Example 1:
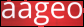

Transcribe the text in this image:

aageo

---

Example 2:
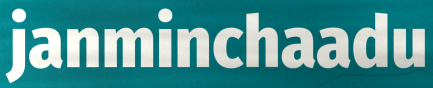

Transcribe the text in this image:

janminchaadu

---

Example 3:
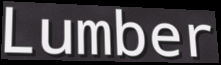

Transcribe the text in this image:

Lumber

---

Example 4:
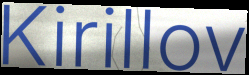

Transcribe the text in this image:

Kirillov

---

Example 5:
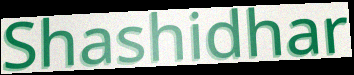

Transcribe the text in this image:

Shashidhar